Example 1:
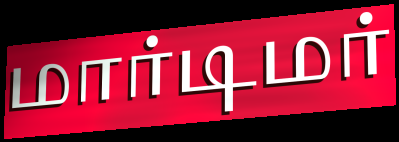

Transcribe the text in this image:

மார்டிமர்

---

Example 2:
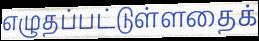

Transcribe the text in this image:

எழுதப்பட்டுள்ளதைக்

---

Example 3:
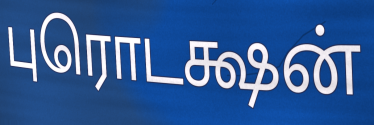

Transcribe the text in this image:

புரொடக்ஷன்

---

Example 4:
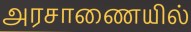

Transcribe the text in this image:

அரசாணையில்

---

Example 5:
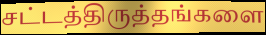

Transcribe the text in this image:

சட்டத்திருத்தங்களை